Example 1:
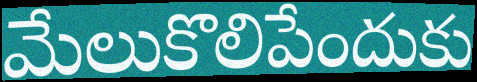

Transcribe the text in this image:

మేలుకొలిపేందుకు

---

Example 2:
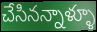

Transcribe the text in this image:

చేసినన్నాళ్ళూ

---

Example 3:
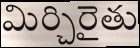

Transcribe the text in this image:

మిర్చిరైతు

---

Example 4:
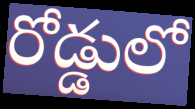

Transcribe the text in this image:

రోడ్డులో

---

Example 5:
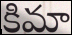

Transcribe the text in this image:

కిమా